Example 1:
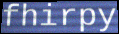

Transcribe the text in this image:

fhirpy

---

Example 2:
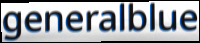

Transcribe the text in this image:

generalblue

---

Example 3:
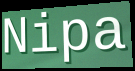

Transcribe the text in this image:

Nipa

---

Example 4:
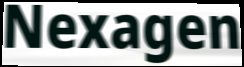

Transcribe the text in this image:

Nexagen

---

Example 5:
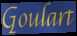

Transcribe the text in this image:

Goulart